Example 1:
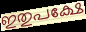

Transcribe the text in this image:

ഇതുപക്ഷേ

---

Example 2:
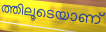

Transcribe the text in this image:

ത്തിലൂടെയാണ്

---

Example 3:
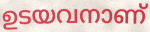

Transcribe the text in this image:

ഉടയവനാണ്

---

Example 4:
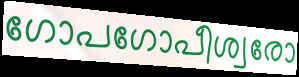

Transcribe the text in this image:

ഗോപഗോപീശ്വരോ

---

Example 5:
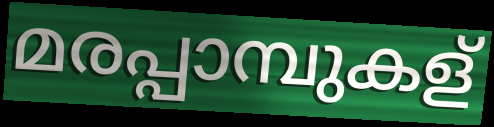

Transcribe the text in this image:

മരപ്പാമ്പുകള്